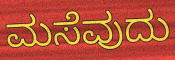
ಮಸೆವುದು